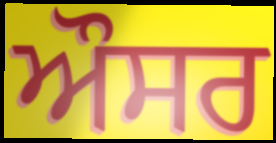
ਔਸਰ